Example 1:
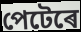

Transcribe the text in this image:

পেটেৰে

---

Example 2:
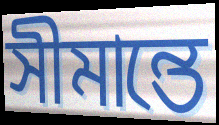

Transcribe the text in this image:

সীমান্তে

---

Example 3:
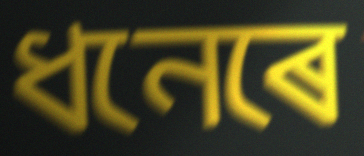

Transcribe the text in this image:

ধনেৰে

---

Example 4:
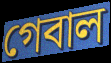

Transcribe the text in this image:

গেবাল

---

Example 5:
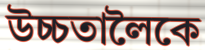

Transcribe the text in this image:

উচ্চতালৈকে